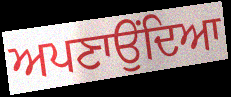
ਅਪਣਾਉਂਦਿਆ